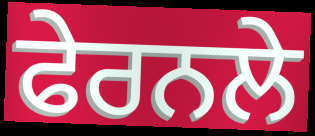
ਫੇਰਨਲੇ